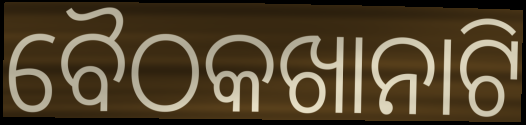
ବୈଠକଖାନାଟି